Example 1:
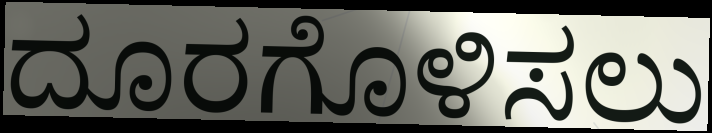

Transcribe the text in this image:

ದೂರಗೊಳಿಸಲು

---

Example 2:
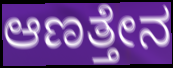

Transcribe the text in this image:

ಆಣತ್ತೇನ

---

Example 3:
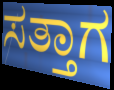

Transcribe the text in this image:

ಸತ್ತಾಗ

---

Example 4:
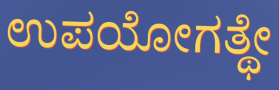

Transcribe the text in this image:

ಉಪಯೋಗತ್ಥೇ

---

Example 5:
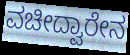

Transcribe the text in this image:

ವಚೀದ್ವಾರೇನ